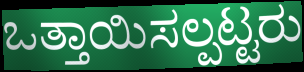
ಒತ್ತಾಯಿಸಲ್ಪಟ್ಟರು